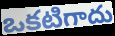
ఒకటిగాదు